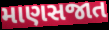
માણસજાત